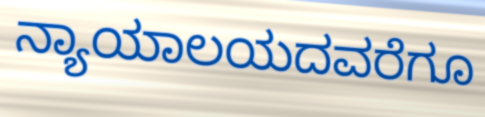
ನ್ಯಾಯಾಲಯದವರೆಗೂ